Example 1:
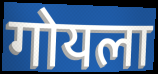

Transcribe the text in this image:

गोयला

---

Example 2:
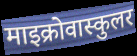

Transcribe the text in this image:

माइक्रोवास्कुलर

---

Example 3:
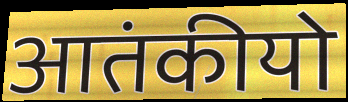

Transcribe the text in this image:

आतंकीयो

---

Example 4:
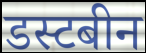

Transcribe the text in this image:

डस्टबीन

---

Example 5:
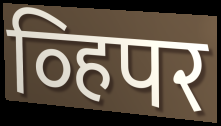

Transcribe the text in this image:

व्हिपर